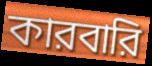
কারবারি